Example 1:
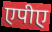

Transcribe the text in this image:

एपीए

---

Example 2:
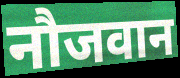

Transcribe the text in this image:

नौजवान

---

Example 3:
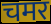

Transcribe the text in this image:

चमर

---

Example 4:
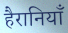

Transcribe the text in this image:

हैरानियाँ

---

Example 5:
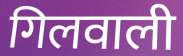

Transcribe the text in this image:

गिलवाली